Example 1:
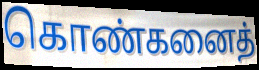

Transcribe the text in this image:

கொண்கனைத்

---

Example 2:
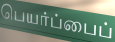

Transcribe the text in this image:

பெயர்ப்பைப்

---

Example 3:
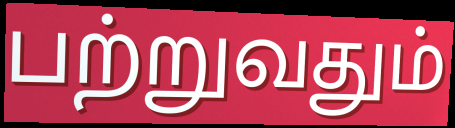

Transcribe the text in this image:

பற்றுவதும்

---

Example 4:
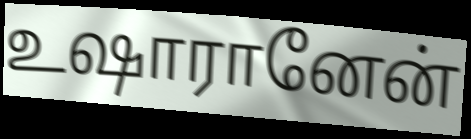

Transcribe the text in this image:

உஷாரானேன்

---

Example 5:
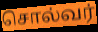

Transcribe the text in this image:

சொல்வர்